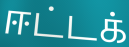
ஈட்டக்